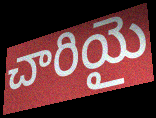
చారియై